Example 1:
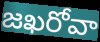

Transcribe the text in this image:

జఖరోవా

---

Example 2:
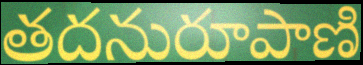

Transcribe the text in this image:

తదనురూపాణి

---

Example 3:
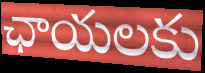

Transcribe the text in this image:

ఛాయలకు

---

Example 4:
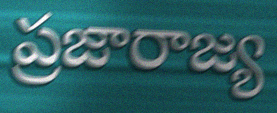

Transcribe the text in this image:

ప్రజారాజ్య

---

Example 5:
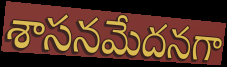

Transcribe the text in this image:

శాసనమేదనగా